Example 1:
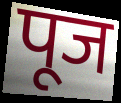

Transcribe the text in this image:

पूज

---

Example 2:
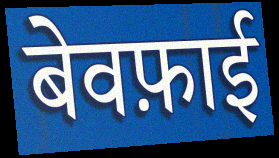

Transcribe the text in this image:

बेवफ़ाई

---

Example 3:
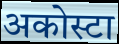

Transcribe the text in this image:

अकोस्टा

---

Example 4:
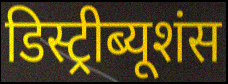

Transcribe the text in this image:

डिस्ट्रीब्यूशंस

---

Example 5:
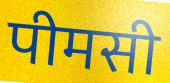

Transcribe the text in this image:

पीमसी